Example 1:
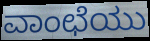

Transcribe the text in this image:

ವಾಂಛೆಯು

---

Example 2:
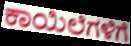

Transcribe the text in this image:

ಕಾಯಿಲೆಗಳಿಗೆ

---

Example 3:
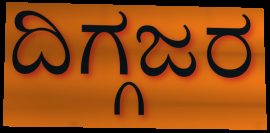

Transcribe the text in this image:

ದಿಗ್ಗಜರ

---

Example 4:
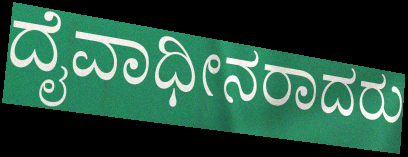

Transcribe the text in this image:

ದೈವಾಧೀನರಾದರು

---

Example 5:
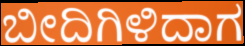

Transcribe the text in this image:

ಬೀದಿಗಿಳಿದಾಗ